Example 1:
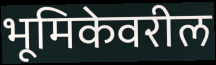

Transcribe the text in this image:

भूमिकेवरील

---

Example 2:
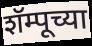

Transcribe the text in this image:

शॅम्पूच्या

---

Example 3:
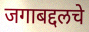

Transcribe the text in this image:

जगाबद्दलचे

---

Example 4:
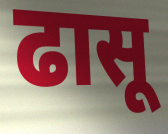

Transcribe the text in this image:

ढासू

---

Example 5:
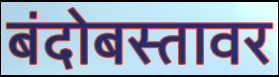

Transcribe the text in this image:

बंदोबस्तावर